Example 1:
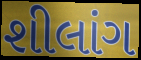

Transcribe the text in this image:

શીલાંગ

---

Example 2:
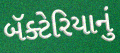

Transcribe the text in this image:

બૅક્ટેરિયાનું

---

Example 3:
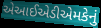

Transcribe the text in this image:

એઆઈએડીએમકેનું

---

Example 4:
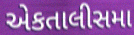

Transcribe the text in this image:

એકતાલીસમા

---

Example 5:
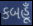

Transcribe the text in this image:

કબહૂઁ